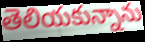
తెలియకున్నాను